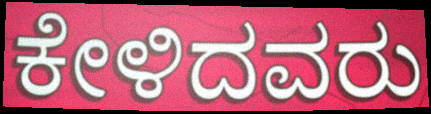
ಕೇಳಿದವರು